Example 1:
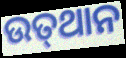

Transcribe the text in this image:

ଉତ୍‌ଥାନ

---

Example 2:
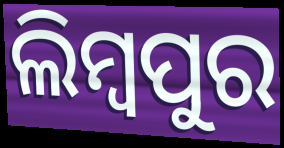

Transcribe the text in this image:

ଲିମ୍ବପୁର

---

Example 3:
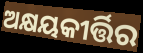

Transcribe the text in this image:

ଅକ୍ଷୟକୀର୍ତ୍ତିର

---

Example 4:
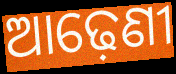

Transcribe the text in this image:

ଆଢ଼େଣୀ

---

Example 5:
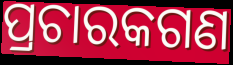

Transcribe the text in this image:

ପ୍ରଚାରକଗଣ